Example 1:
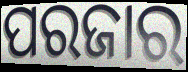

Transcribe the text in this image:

ପରଜାର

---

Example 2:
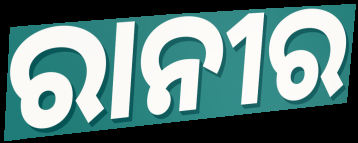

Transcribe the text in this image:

ରାନୀର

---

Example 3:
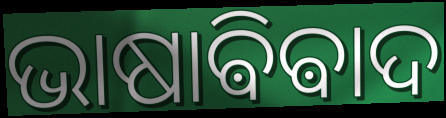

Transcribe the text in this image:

ଭାଷାଵିଵାଦ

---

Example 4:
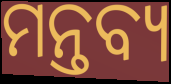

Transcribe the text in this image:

ମନ୍ତବ୍ୟ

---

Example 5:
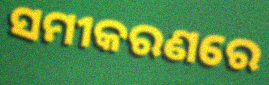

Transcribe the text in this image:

ସମୀକରଣରେ